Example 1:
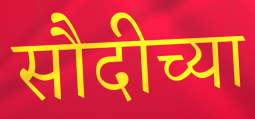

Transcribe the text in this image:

सौदीच्या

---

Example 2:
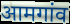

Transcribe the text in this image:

आमगांव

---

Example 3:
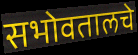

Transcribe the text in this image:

सभोवतालचे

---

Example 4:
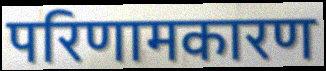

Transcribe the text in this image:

परिणामकारण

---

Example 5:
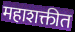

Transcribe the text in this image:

महाशक्तीत